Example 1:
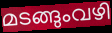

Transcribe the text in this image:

മടങ്ങുംവഴി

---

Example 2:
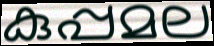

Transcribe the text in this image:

കുപ്പമല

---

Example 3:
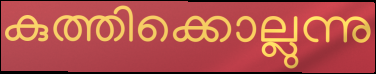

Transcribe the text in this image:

കുത്തിക്കൊല്ലുന്നു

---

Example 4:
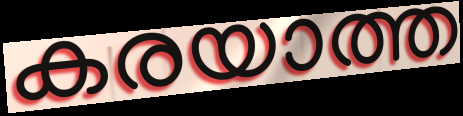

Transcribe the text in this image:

കരയാത്ത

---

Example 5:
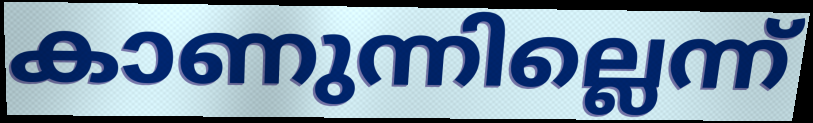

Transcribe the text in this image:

കാണുന്നില്ലെന്ന്